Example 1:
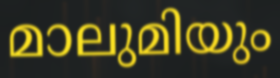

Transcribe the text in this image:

മാലുമിയും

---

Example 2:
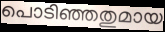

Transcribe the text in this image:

പൊടിഞ്ഞതുമായ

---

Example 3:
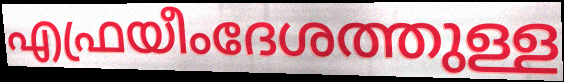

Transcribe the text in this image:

എഫ്രയീംദേശത്തുള്ള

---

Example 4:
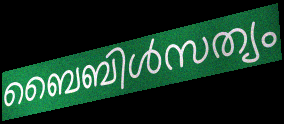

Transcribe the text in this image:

ബൈബിൾസത്യം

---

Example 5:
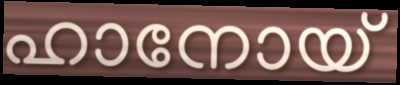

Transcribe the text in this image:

ഹാനോയ്